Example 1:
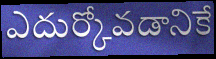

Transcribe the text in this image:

ఎదుర్కోవడానికే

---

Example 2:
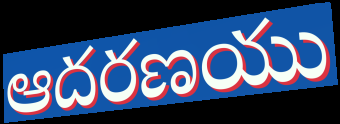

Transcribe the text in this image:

ఆదరణయు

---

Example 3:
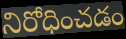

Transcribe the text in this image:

నిరోధించడం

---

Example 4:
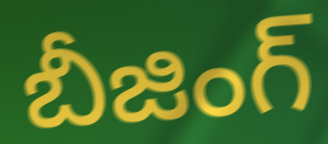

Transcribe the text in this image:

బీజింగ్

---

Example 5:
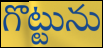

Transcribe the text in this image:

గొట్టును